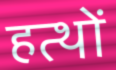
हत्थों